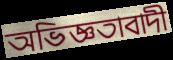
অভিজ্ঞতাবাদী